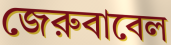
জেরুবাবেল